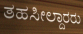
ತಹಸೀಲ್ದಾರರು